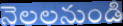
నెలలనుండి